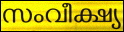
സംവീക്ഷ്യ